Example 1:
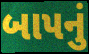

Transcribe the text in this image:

બાપનું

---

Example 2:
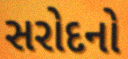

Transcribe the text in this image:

સરોદનો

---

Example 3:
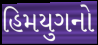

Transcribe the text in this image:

હિમયુગનો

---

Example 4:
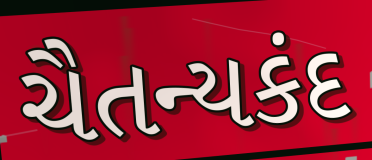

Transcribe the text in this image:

ચૈતન્યકંદ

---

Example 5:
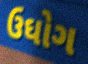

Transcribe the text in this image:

ઉઘોગ